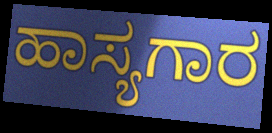
ಹಾಸ್ಯಗಾರ